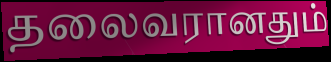
தலைவரானதும்